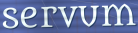
servum